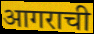
आगराची